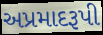
અપ્રમાદરૂપી